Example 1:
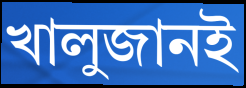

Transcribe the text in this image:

খালুজানই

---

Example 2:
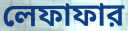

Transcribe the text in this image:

লেফাফার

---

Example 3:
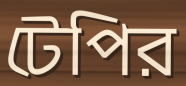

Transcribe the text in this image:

টেপির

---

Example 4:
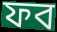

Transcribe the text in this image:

ফব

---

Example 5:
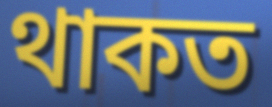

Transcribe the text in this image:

থাকত